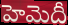
హెమెదీ